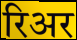
रिअर